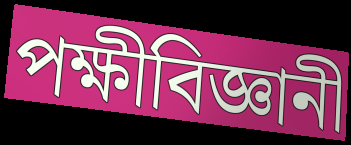
পক্ষীবিজ্ঞানী